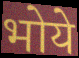
भोये